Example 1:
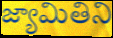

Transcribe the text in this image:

జ్యామితిని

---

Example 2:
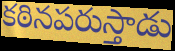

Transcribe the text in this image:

కఠినపరుస్తాడు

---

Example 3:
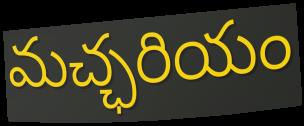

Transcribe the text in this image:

మచ్ఛరియం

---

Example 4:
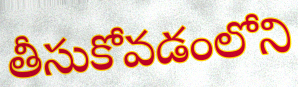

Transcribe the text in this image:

తీసుకోవడంలోని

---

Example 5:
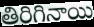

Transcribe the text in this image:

తిరిగినాయి